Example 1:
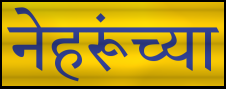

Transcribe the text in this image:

नेहरूंच्या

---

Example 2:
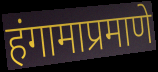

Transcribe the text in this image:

हंगामाप्रमाणे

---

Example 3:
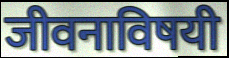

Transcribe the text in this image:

जीवनाविषयी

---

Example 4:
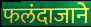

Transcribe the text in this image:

फलंदाजाने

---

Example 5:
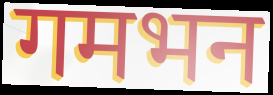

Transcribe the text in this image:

गमभन